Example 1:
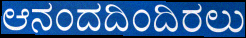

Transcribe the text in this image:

ಆನಂದದಿಂದಿರಲು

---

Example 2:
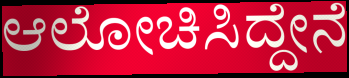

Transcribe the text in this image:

ಆಲೋಚಿಸಿದ್ದೇನೆ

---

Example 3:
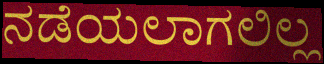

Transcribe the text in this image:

ನಡೆಯಲಾಗಲಿಲ್ಲ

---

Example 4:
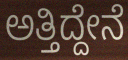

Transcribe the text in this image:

ಅತ್ತಿದ್ದೇನೆ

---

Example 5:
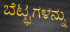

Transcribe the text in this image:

ಬೆಟ್ಟಗಳನ್ನು